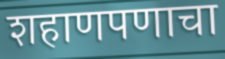
शहाणपणाचा